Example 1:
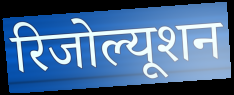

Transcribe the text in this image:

रिजोल्‍यूशन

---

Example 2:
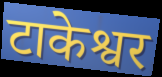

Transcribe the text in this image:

टाकेश्वर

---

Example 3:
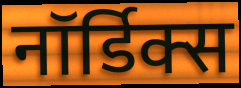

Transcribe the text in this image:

नॉर्डिक्स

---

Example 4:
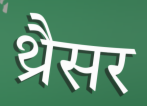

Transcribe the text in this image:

थ्रैसर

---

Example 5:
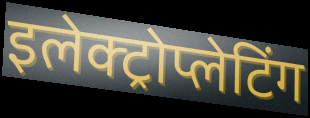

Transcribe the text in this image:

इलेक्ट्रोप्लेटिंग